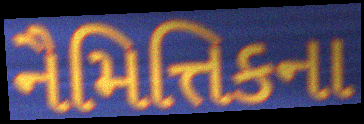
નૈમિત્તિકના